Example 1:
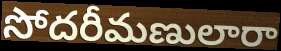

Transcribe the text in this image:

సోదరీమణులారా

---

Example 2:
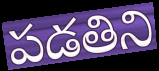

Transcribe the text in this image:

పడతిని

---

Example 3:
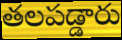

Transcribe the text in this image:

తలపడ్డారు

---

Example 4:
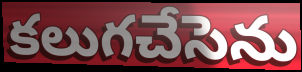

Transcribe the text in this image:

కలుగచేసెను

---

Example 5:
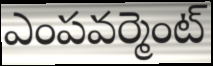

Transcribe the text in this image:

ఎంపవర్మెంట్